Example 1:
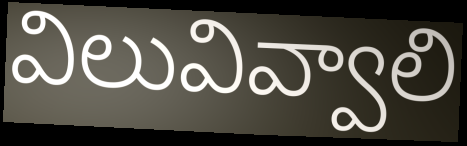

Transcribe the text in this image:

విలువివ్వాలి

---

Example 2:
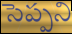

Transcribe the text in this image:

సెప్పని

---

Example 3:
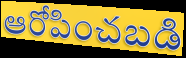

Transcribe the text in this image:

ఆరోపించబడి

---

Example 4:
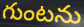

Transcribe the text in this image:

గుంటను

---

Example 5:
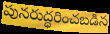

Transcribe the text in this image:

పునరుద్ధరించబడిన